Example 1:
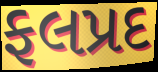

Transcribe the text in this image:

ફલપ્રદ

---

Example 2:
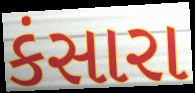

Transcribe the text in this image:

કંસારા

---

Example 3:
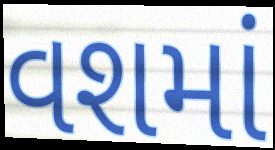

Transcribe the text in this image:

વશમાં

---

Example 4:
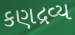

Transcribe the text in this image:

કણદ્રવ્ય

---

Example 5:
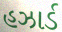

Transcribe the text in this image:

હઝાર્ડ